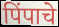
पिंपाचे